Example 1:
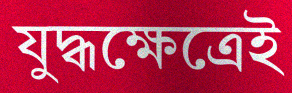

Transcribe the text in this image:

যুদ্ধক্ষেত্রেই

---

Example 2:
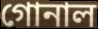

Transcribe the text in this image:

গোনাল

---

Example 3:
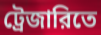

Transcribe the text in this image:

ট্রেজারিতে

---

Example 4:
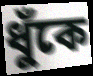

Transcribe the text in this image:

ধুঁকে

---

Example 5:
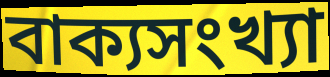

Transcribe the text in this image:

বাক্যসংখ্যা